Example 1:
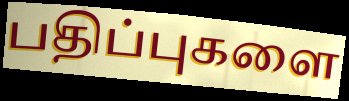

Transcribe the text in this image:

பதிப்புகளை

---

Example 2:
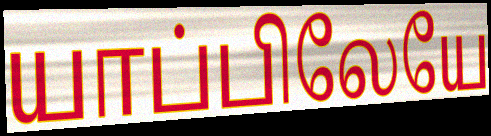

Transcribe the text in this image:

யாப்பிலேயே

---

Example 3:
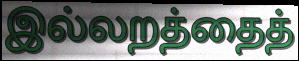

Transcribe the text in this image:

இல்லறத்தைத்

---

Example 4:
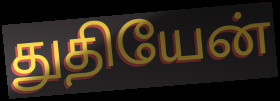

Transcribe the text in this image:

துதியேன்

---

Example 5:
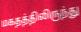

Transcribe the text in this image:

மகதத்திலிருந்து